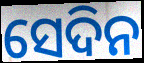
ସେଦିନ